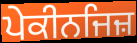
ਪੇਕੀਨਜਿਜ਼